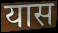
यास